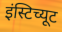
इंस्टिच्यूट